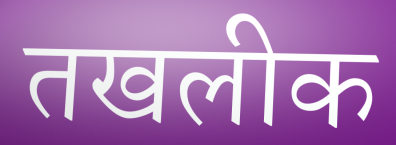
तखलीक